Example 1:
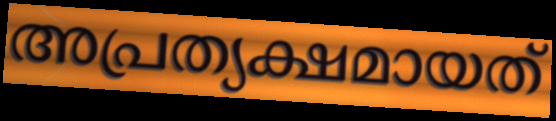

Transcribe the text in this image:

അപ്രത്യക്ഷമായത്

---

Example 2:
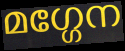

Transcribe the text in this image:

മഗ്ഗേന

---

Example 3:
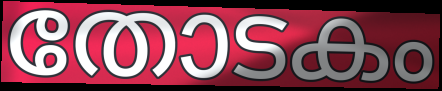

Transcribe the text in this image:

തോടകം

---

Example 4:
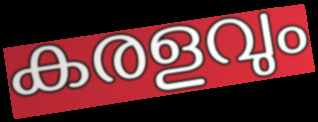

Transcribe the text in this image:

കരളവും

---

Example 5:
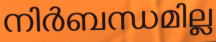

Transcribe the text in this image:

നിർബന്ധമില്ല